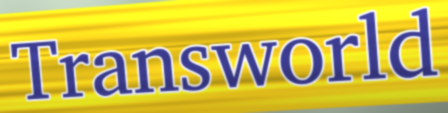
Transworld